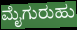
ಮೈಗುರುಹು